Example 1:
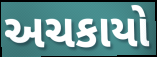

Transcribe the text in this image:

અચકાયો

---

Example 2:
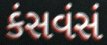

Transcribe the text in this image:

કંસવંસં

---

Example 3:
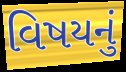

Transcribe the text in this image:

વિષયનું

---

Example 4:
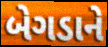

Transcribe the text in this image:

બેગડાને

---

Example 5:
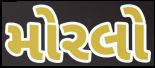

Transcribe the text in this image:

મોરલો